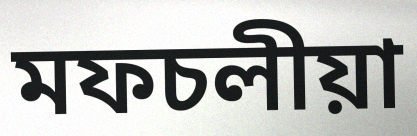
মফচলীয়া